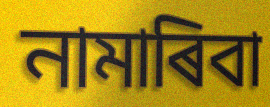
নামাৰিবা